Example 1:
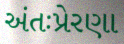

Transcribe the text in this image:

અંતઃપ્રેરણા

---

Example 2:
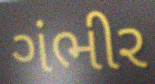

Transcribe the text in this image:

ગંભીર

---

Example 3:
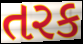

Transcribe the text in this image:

તરક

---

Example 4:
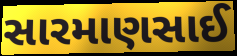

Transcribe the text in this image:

સારમાણસાઈ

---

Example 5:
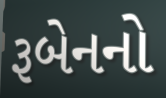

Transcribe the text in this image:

રૂબેનનો